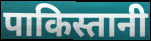
पाकिस्तानी